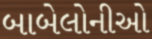
બાબેલોનીઓ